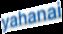
yahanai